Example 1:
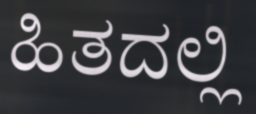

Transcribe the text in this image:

ಹಿತದಲ್ಲಿ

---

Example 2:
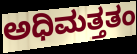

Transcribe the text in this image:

ಅಧಿಮತ್ತತಂ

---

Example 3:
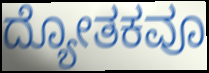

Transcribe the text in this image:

ದ್ಯೋತಕವೂ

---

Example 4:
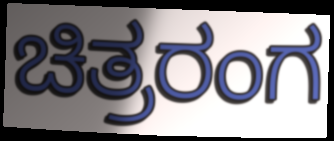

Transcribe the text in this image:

ಚಿತ್ರರಂಗ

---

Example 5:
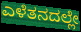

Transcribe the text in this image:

ಎಳೆತನದಲ್ಲೇ